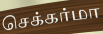
செக்கர்மா